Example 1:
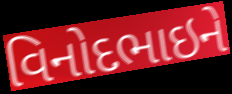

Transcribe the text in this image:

વિનોદભાઇને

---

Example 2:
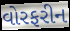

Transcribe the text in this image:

વોરફરીન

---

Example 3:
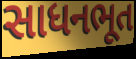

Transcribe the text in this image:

સાધનભૂત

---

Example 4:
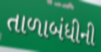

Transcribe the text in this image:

તાળાબંધીની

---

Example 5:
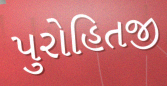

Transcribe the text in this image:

પુરોહિતજી